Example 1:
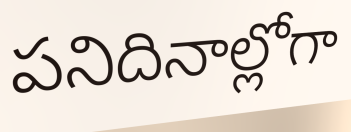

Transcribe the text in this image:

పనిదినాల్లోగా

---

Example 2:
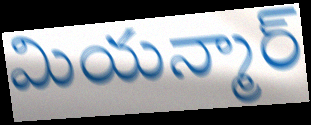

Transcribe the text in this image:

మియన్మార్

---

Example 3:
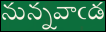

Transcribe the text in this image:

నున్నవాఁడ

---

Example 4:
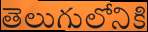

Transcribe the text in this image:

తెలుగులోనికి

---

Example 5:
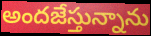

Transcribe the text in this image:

అందజేస్తున్నాను